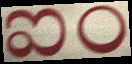
ఐం